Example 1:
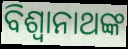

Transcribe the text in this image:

ବିଶ୍ୱାନାଥଙ୍କ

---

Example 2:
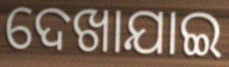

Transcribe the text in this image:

ଦେଖାଯାଇ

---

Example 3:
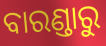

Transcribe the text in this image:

ବାରଣ୍ଡାରୁ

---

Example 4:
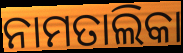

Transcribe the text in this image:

ନାମତାଲିକା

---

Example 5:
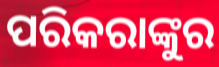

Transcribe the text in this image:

ପରିକରାଙ୍କୁର